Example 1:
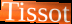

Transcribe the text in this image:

Tissot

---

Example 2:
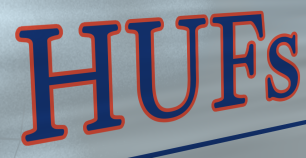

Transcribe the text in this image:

HUFs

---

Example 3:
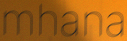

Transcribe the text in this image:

mhana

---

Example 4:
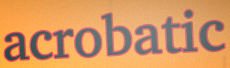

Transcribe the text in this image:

acrobatic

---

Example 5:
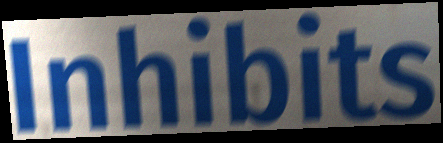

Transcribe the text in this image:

Inhibits